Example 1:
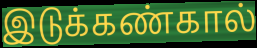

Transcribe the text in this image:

இடுக்கண்கால்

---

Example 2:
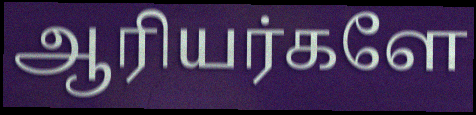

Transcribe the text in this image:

ஆரியர்களே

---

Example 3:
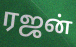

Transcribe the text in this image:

ரஜன்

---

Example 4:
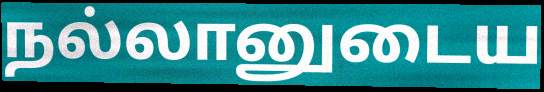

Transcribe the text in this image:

நல்லானுடைய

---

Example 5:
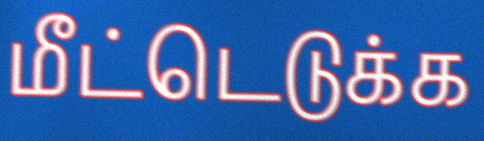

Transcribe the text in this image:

மீட்டெடுக்க